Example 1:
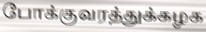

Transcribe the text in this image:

போக்குவரத்துக்கழக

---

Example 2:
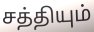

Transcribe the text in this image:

சத்தியும்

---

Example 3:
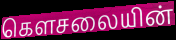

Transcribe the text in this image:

கௌசலையின்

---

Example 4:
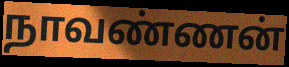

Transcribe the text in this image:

நாவண்ணன்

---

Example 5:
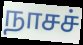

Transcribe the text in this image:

நாசச்